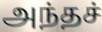
அந்தச்